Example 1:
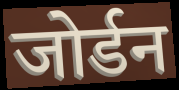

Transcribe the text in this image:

जोर्डन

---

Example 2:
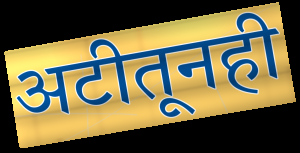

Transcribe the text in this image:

अटीतूनही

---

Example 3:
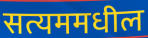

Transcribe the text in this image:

सत्यममधील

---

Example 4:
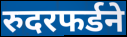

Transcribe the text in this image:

रुदरफर्डने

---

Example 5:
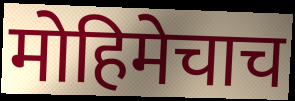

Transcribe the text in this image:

मोहिमेचाच